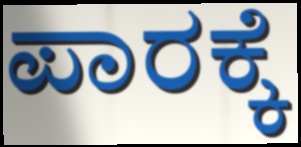
ಪಾರಕ್ಕೆ